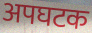
अपघटक